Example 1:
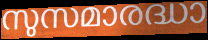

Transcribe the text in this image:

സുസമാരദ്ധാ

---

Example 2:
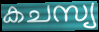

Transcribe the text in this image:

കചസ്യ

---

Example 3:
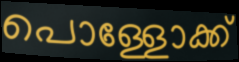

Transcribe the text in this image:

പൊള്ളോക്ക്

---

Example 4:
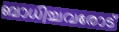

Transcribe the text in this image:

ബാധിച്ചവരോട്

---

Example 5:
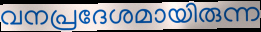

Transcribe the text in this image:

വനപ്രദേശമായിരുന്ന